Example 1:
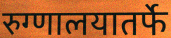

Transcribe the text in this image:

रुग्णालयातर्फे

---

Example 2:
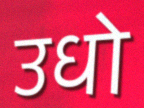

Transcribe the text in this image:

उधो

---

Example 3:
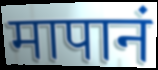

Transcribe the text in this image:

मापानं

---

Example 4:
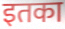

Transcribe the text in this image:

इतका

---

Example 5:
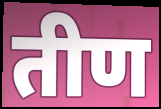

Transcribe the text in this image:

तीण